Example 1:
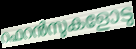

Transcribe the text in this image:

റഫറൻസുകളോടു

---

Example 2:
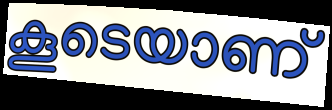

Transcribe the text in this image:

കൂടെയാണ്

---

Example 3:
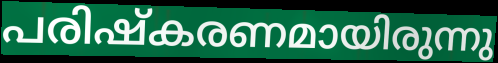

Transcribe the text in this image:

പരിഷ്കരണമായിരുന്നു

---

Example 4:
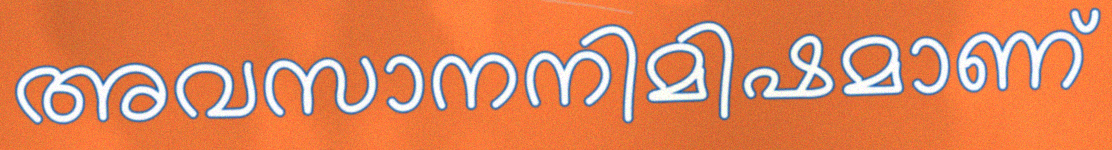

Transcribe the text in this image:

അവസാനനിമിഷമാണ്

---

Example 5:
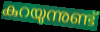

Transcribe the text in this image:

കുറയുന്നുണ്ട്